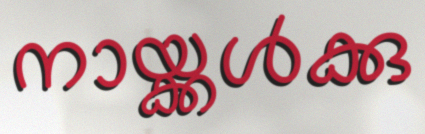
നായ്ക്കൾക്കു